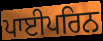
ਪਾਈਪਰਿਨ